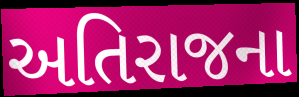
અતિરાજના